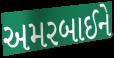
અમરબાઈને